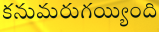
కనుమరుగయ్యింది